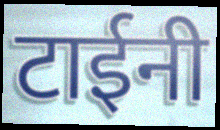
टाईनी